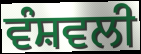
ਵੰਸ਼ਵਲੀ